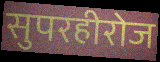
सुपरहीरोज